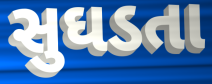
સુઘડતા